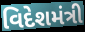
વિદેશમંત્રી